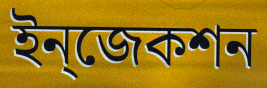
ইন্‌জেকশন